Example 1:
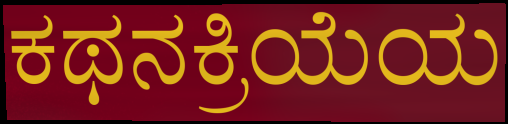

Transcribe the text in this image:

ಕಥನಕ್ರಿಯೆಯ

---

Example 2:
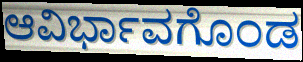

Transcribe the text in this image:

ಆವಿರ್ಭಾವಗೊಂಡ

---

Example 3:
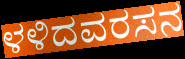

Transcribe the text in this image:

ಳಳಿದವರಸನ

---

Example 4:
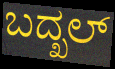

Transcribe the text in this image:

ಬದ್ಖಲ್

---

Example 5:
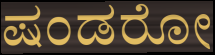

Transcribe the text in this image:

ಷಂಡರೋ